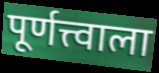
पूर्णत्त्वाला